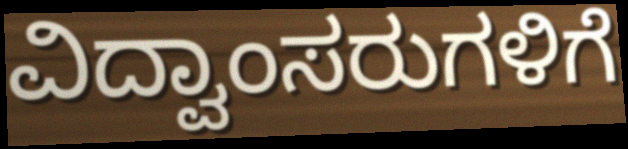
ವಿದ್ವಾಂಸರುಗಳಿಗೆ